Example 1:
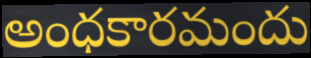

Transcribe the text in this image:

అంధకారమందు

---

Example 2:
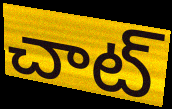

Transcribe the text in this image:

చాట్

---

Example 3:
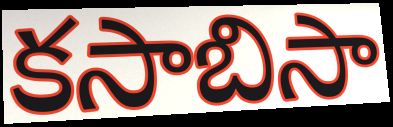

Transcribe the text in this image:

కసాబిసా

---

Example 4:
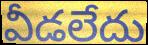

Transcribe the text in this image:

వీడలేదు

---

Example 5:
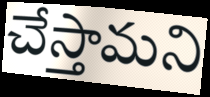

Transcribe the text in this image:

చేస్తామని